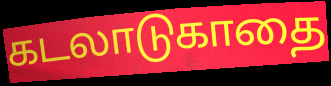
கடலாடுகாதை